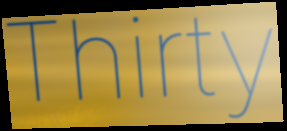
Thirty